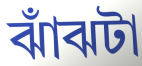
ঝাঁঝটা